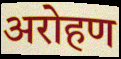
अरोहण